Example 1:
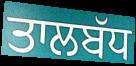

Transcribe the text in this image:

ਤਾਲਬੱਧ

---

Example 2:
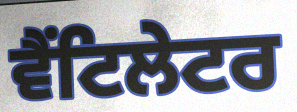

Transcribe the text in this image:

ਵੈਂਟਿਲੇਟਰ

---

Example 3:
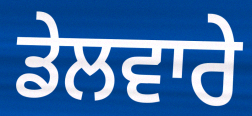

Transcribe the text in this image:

ਡੇਲਵਾਰੇ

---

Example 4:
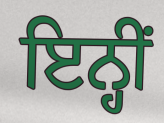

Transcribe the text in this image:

ਇਨ੍ਹੀਂ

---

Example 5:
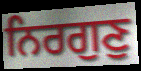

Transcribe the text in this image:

ਨਿਰਗੁਣੁ